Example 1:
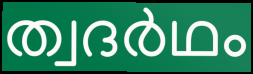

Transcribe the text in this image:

ത്വദർഥം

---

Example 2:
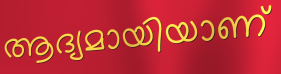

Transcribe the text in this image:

ആദ്യമായിയാണ്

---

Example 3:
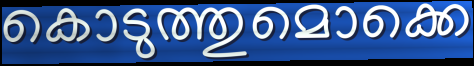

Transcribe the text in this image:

കൊടുത്തുമൊക്കെ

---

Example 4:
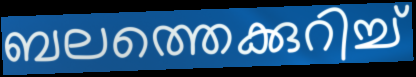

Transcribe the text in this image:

ബലത്തെക്കുറിച്ച്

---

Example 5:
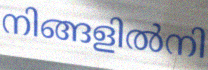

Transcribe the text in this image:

നിങ്ങളിൽനി